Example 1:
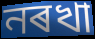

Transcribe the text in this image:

নৰখা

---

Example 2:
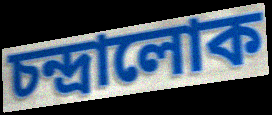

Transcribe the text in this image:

চন্দ্ৰালোক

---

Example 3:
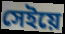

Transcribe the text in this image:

সেইয়ে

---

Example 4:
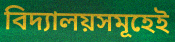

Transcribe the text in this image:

বিদ্যালয়সমূহেই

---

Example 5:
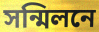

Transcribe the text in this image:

সন্মিলনে